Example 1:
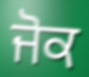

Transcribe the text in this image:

ਜੋਕ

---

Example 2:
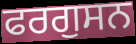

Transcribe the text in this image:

ਫਰਗੁਸਨ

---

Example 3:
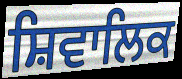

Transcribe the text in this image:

ਸ਼ਿਵਾਲਿਕ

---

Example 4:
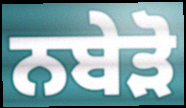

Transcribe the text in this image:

ਨਬੇੜੋ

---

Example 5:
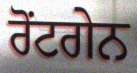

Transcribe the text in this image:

ਰੋਂਟਗੇਨ